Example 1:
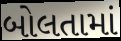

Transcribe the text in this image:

બોલતામાં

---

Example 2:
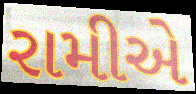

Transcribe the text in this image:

રામીએ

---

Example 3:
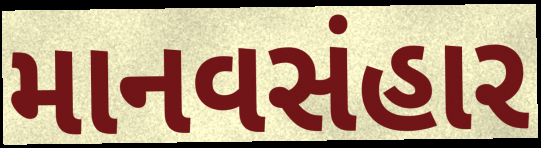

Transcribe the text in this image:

માનવસંહાર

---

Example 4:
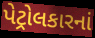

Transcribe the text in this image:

પેટ્રોલકારનાં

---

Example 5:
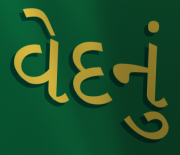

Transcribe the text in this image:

વેદનું